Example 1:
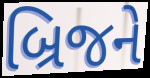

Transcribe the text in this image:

બ્રિજને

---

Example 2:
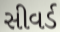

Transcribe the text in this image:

સીવર્ડ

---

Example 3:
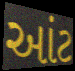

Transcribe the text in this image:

આંટ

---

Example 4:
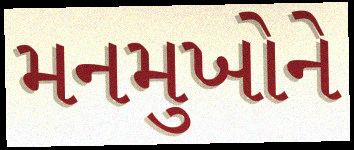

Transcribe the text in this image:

મનમુખોને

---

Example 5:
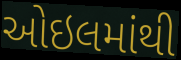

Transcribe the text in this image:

ઓઇલમાંથી